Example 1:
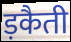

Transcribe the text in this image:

ड़कैती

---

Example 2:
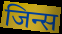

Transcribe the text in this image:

जिन्‍स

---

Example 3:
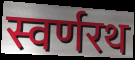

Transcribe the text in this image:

स्वर्णरथ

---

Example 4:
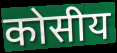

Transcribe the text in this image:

कोसीय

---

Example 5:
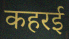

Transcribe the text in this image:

कहरई